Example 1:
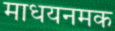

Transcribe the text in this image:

माधयनमक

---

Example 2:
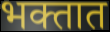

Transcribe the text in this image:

भक्तात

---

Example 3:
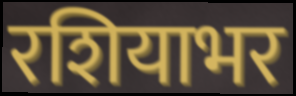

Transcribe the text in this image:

रशियाभर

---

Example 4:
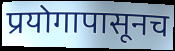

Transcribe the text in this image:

प्रयोगापासूनच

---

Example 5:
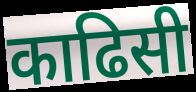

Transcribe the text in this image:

काढिसी